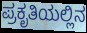
ಪ್ರಕೃತಿಯಲ್ಲಿನ